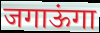
जगाऊंगा